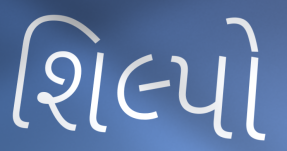
શિલ્પો